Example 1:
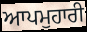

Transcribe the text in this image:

ਆਪਮੁਹਾਰੀ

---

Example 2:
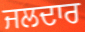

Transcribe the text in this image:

ਜਲਦਾਰ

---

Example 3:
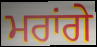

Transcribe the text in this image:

ਮਰਾਂਗੇ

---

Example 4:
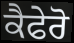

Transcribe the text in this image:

ਕੈਫੇਰੋ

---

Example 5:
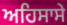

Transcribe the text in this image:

ਅਹਿਸਾਸੇ